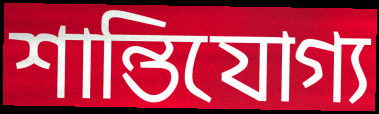
শান্তিযোগ্য